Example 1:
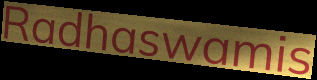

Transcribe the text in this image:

Radhaswamis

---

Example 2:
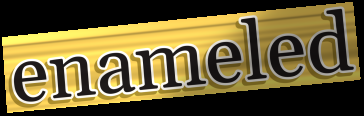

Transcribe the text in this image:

enameled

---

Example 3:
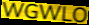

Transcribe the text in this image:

WGWLO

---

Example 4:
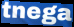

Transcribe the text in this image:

tnega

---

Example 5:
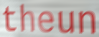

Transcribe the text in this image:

theun